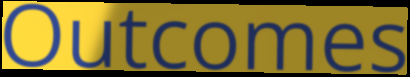
Outcomes